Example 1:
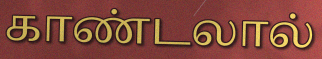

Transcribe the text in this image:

காண்டலால்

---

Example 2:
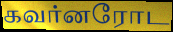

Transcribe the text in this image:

கவர்னரோட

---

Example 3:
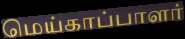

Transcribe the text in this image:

மெய்காப்பாளர்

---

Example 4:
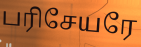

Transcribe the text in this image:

பரிசேயரே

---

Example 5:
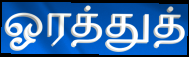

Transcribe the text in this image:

ஓரத்துத்